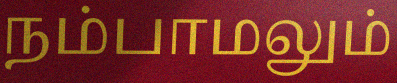
நம்பாமலும்